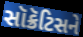
સૉક્રૅટિસને